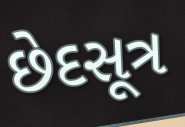
છેદસૂત્ર